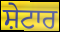
ਸ਼ੇਟਾਰ